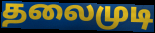
தலைமுடி